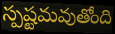
స్పష్టమవుతోంది